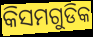
କିସମଗୁଡିକ